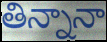
తిన్నానా